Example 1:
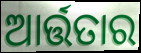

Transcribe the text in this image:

ଆର୍ତ୍ତତାର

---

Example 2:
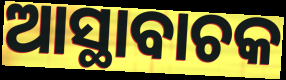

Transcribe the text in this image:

ଆସ୍ଥାବାଚକ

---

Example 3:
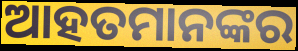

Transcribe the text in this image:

ଆହତମାନଙ୍କର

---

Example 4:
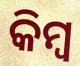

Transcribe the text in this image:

କିମ୍ବ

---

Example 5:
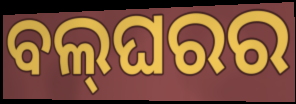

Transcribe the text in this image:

ବଲ୍‌ଘରର